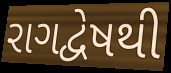
રાગદ્વેષથી